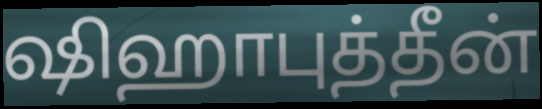
ஷிஹாபுத்தீன்